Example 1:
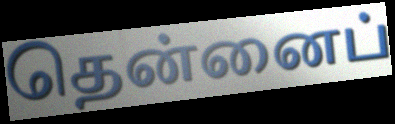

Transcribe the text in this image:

தென்னைப்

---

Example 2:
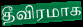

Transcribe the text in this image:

தீவிரமாக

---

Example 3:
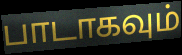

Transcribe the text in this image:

பாடாகவும்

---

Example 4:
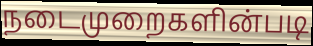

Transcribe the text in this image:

நடைமுறைகளின்படி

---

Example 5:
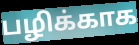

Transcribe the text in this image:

பழிக்காக